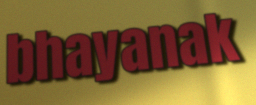
bhayanak